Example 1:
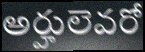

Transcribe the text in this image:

అర్హులెవరో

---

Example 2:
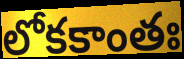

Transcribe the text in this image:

లోకకాంతః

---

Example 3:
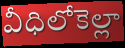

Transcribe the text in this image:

వీధిలోకెల్లా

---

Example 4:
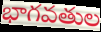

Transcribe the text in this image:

భాగవతుల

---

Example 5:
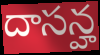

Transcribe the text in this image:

దాసన్హ